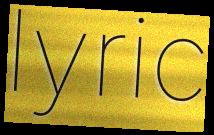
lyric